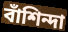
বাঁশিন্দা